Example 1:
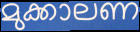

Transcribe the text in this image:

മുക്കാലണ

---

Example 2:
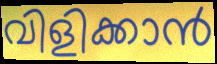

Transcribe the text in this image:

വിളിക്കാൻ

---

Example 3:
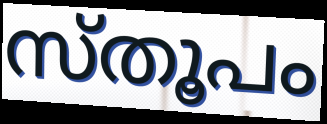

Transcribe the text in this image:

സ്തൂപം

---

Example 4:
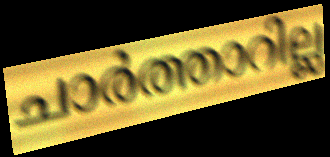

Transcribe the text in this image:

ചാർത്താറില്ല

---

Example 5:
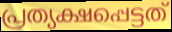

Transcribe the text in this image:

പ്രത്യക്ഷപ്പെട്ടത്